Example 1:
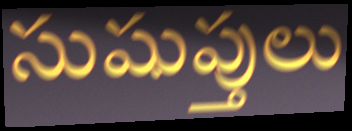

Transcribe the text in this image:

సుషుప్తులు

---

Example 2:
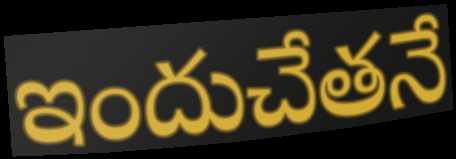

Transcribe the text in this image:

ఇందుచేతనే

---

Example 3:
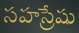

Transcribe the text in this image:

సహస్రేషు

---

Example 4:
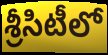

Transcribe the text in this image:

శ్రీసిటీలో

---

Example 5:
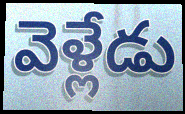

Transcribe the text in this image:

వెళ్లేడు